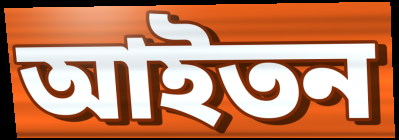
আইতন